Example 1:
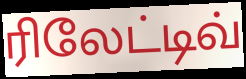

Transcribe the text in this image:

ரிலேட்டிவ்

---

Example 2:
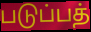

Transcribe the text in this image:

படுப்பத்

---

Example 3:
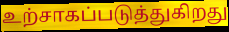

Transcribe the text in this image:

உற்சாகப்படுத்துகிறது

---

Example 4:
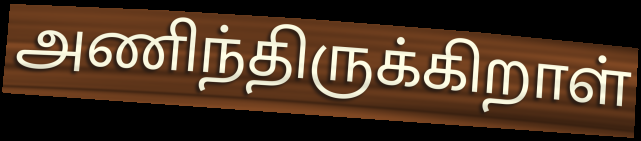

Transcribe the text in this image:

அணிந்திருக்கிறாள்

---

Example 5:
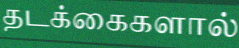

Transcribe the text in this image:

தடக்கைகளால்